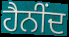
ਹੈਨੀਂਦ